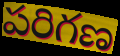
పరిగణ